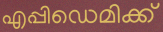
എപ്പിഡെമിക്ക്